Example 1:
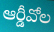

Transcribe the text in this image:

ఆర్డీవోల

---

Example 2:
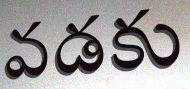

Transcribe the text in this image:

వడకు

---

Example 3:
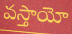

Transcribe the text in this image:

వస్తాయో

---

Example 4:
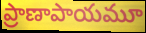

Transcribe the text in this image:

ప్రాణాపాయమూ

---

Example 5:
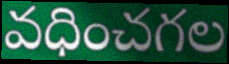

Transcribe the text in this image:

వధించగల